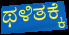
ಥಳಿತಕ್ಕೆ